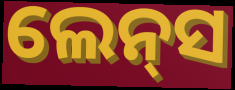
ଲେନ୍‌ସ